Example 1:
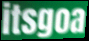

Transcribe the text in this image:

itsgoa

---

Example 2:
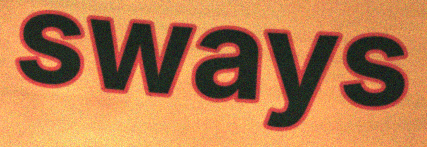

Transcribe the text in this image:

sways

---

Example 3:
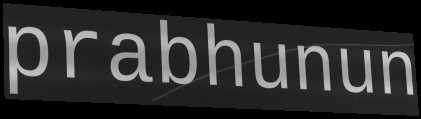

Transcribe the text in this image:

prabhunun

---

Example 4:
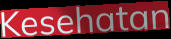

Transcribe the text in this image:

Kesehatan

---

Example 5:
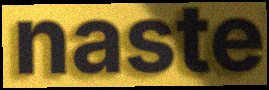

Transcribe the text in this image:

naste